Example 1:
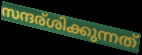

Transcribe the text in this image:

സന്ദര്ശിക്കുന്നത്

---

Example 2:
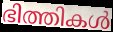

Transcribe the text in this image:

ഭിത്തികൾ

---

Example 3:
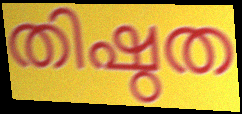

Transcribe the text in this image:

തിഷ്ഠത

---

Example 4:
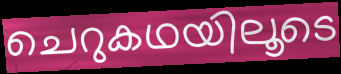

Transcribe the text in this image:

ചെറുകഥയിലൂടെ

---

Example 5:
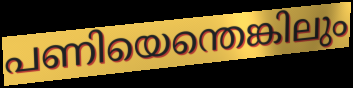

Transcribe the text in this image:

പണിയെന്തെങ്കിലും